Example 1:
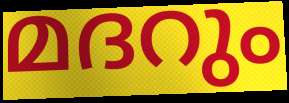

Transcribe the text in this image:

മദറും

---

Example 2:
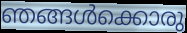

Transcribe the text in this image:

ഞങ്ങൾക്കൊരു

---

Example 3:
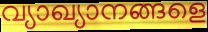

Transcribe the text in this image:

വ്യാഖ്യാനങ്ങളെ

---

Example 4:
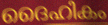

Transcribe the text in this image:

ദൈഹികം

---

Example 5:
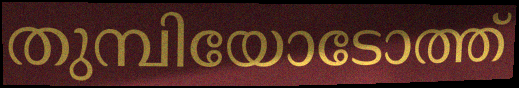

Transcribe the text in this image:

തുമ്പിയോടോത്ത്